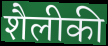
शैलीकी